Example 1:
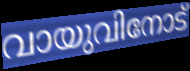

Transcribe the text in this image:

വായുവിനോട്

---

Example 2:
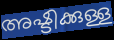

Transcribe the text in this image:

അഷ്ടിക്കുള്ള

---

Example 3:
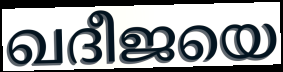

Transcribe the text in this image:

ഖദീജയെ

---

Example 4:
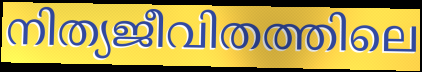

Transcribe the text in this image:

നിത്യജീവിതത്തിലെ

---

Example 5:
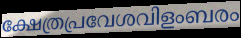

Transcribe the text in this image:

ക്ഷേത്രപ്രവേശവിളംബരം